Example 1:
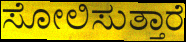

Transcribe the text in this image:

ಸೋಲಿಸುತ್ತಾರೆ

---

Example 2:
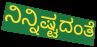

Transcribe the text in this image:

ನಿನ್ನಿಷ್ಟದಂತೆ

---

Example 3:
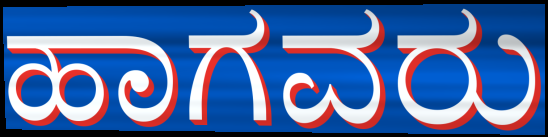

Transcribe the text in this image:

ಹಾಗವರು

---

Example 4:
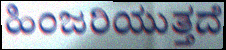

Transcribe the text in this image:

ಹಿಂಜರಿಯುತ್ತದೆ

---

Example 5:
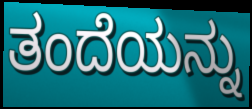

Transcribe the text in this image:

ತಂದೆಯನ್ನು